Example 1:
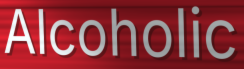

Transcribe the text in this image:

Alcoholic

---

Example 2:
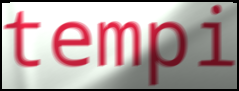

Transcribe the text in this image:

tempi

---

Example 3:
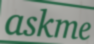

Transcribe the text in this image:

askme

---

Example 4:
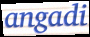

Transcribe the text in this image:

angadi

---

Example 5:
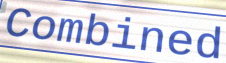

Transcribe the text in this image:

Combined